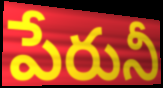
పేరునీ